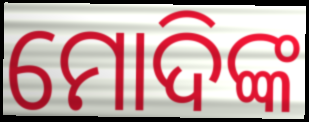
ମୋଦିଙ୍କ